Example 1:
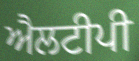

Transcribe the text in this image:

ਐਲਟੀਪੀ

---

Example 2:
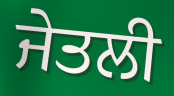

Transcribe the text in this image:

ਜੇਤਲੀ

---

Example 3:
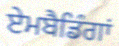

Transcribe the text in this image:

ਏਮਬੈਡਿੰਗਾਂ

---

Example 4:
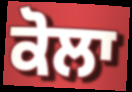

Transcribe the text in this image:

ਕੋਲਾ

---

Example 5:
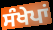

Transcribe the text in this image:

ਸੰਖੇਪਾਂ